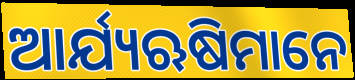
ଆର୍ଯ୍ୟଋଷିମାନେ